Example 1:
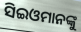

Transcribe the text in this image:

ସିଇଓମାନଙ୍କୁ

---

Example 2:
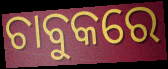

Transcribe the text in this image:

ଚାବୁକରେ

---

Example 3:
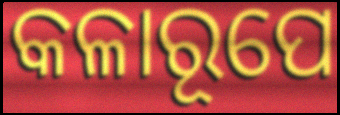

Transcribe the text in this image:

କଳାରୂପେ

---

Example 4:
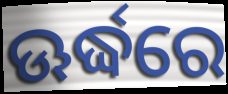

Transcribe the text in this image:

ଊର୍ଦ୍ଧରେ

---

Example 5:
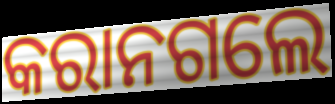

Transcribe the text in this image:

କରାନଗଲେ